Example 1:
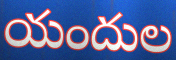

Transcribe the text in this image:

యందుల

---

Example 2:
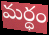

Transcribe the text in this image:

మర్ధం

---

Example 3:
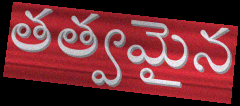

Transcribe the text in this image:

తత్వమైన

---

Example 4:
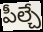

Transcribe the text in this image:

పీల్చే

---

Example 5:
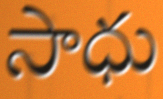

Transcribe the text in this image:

సాధు